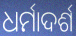
ଧର୍ମାଦର୍ଶ